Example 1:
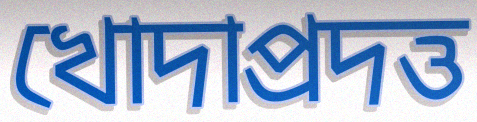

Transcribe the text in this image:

খোদাপ্রদত্ত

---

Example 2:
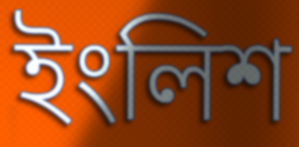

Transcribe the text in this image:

ইংলিশ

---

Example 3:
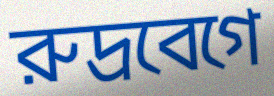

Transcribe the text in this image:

রুদ্রবেগে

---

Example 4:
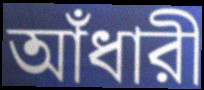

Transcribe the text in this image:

আঁধারী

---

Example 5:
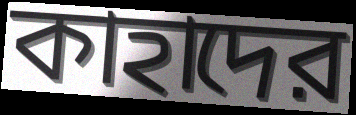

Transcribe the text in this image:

কাহাদের